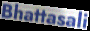
Bhattasali